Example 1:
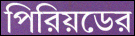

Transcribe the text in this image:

পিরিয়ডের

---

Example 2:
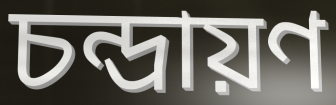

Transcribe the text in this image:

চন্দ্রায়ণ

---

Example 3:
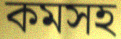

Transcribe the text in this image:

কমসহ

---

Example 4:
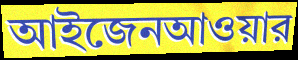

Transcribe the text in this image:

আইজেনআওয়ার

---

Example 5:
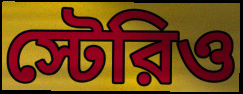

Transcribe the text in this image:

স্টেরিও